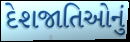
દેશજાતિઓનું